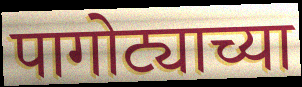
पागोट्याच्या